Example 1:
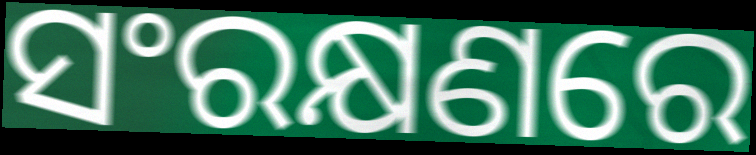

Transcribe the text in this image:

ସଂରକ୍ଷଣରେ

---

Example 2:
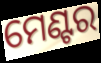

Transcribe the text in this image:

ମେଣ୍ଟର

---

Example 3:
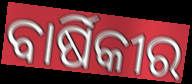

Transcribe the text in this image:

ବାର୍ଷିକୀର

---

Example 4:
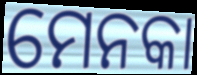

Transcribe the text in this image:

ମେନକା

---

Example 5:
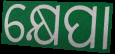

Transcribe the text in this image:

କ୍ଷେପା